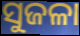
ସୁଜଳା